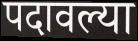
पदावल्या